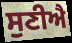
ਸੁਣੀਐ